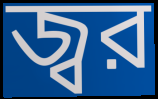
জ্বর